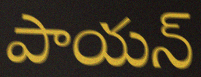
పాయన్